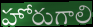
హోరుగాలి